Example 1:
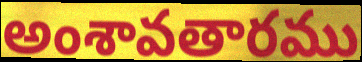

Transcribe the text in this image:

అంశావతారము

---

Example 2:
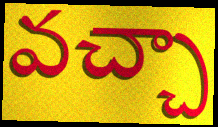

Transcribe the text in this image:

వచ్చా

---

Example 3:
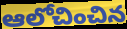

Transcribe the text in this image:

ఆలోచించిన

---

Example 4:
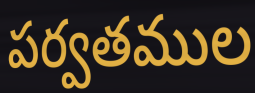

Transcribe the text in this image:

పర్వతముల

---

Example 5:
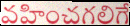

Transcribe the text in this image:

వహించగలిగే